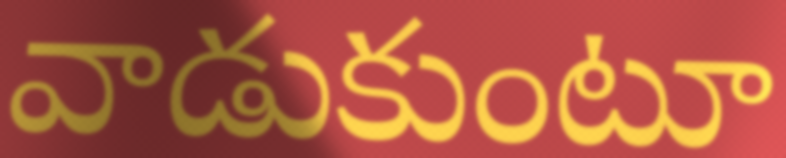
వాడుకుంటూ